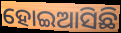
ହୋଇଆସିଛି